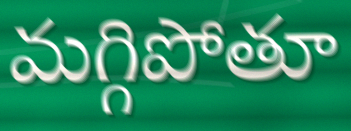
మగ్గిపోతూ